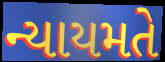
ન્યાયમતે